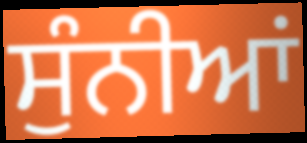
ਸੁੰਨੀਆਂ